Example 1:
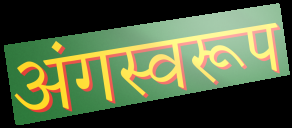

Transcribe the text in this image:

अंगस्वरूप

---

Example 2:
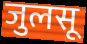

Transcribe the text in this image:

जुलसू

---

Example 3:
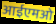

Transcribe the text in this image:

आईएमओ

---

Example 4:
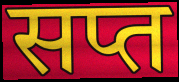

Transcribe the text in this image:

सप्त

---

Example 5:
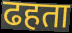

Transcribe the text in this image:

ढहता